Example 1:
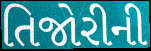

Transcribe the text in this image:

તિજોરીની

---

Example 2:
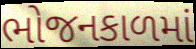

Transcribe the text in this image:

ભોજનકાળમાં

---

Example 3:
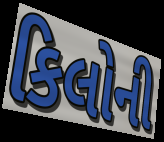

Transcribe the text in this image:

કિલોની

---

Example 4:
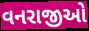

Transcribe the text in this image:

વનરાજીઓ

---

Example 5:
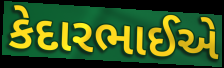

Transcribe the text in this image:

કેદારભાઈએ